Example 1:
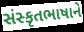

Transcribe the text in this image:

સંસ્કૃતભાષાને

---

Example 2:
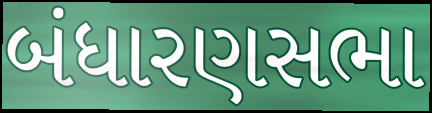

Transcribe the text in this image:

બંધારણસભા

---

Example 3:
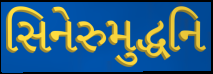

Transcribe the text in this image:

સિનેરુમુદ્ધનિ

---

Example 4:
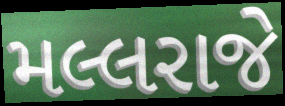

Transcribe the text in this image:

મલ્લરાજે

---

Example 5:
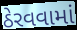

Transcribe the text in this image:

ઠેરવવામાં